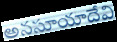
అనసూయాదేవి